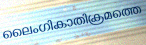
ലൈംഗികാതിക്രമത്തെ